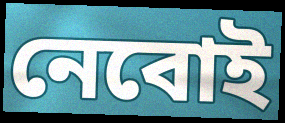
নেবোই